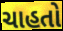
ચાહતો